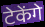
टेकेंगे